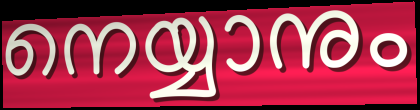
നെയ്യാനും